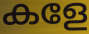
കളേ